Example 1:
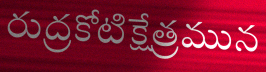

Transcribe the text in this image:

రుద్రకోటిక్షేత్రమున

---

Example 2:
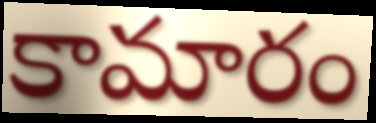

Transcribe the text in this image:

కామారం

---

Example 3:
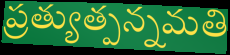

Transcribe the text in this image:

ప్రత్యుత్పన్నమతి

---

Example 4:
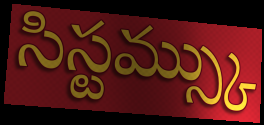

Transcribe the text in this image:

సిస్టమ్స్కు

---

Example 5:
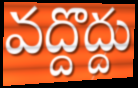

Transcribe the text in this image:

వద్దొద్దు